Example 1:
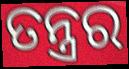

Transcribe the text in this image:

ତନ୍ତ୍ରର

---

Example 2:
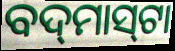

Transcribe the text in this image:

ବଦ୍‌ମାସ୍‌ଟା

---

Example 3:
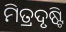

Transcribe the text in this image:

ମିତ୍ରଦୃଷ୍ଟି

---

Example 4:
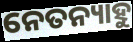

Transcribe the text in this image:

ନେତନ୍ୟାହୁ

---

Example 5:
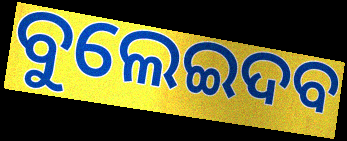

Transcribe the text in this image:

ବୁଲେଇଦବ